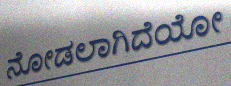
ನೋಡಲಾಗಿದೆಯೋ